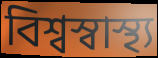
বিশ্বস্বাস্থ্য